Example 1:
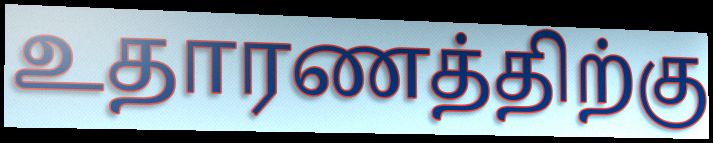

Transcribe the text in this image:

உதாரணத்திற்கு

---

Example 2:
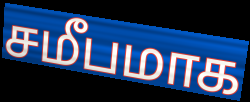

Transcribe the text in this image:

சமீபமாக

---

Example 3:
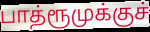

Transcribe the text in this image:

பாத்ரூமுக்குச்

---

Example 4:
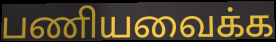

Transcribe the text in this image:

பணியவைக்க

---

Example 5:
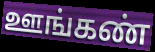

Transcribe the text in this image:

ஊங்கண்